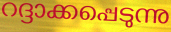
റദ്ദാക്കപ്പെടുന്നു